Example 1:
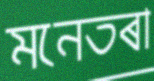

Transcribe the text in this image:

মনেতৰা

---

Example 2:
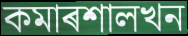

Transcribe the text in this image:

কমাৰশালখন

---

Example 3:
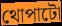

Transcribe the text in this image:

থোপাটো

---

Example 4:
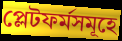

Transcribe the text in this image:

প্লেটফৰ্মসমূহে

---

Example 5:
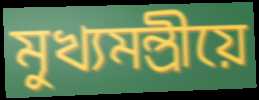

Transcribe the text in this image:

মুখ্যমন্ত্ৰীয়ে